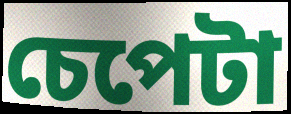
চেপেটা